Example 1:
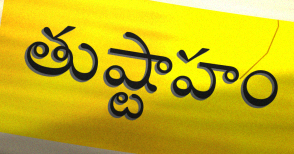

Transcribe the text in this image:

తుష్టాహం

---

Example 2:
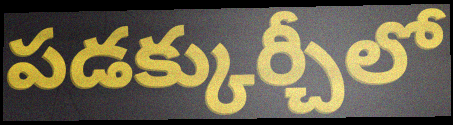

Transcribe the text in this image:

పడక్కుర్చీలో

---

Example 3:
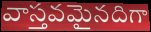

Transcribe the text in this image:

వాస్తవమైనదిగా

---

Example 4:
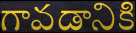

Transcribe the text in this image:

గావడానికి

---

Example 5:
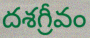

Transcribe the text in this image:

దశగ్రీవం